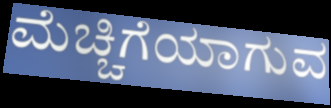
ಮೆಚ್ಚಿಗೆಯಾಗುವ